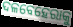
ଦଳବେହେରାକୁ